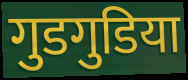
गुडगुडिया